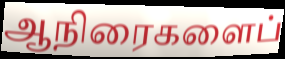
ஆநிரைகளைப்